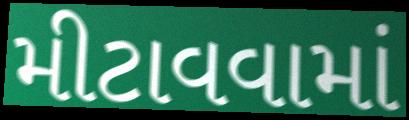
મીટાવવામાં